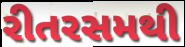
રીતરસમથી